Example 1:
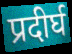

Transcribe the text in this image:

प्रदीर्घ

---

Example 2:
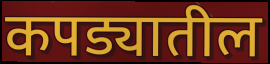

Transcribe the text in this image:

कपड्यातील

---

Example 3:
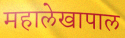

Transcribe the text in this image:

महालेखापाल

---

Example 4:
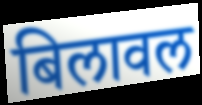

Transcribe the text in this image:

बिलावल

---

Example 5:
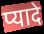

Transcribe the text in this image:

प्यादे